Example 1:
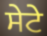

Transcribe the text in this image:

ਸੇਟੇ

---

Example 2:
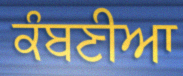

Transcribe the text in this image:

ਕੰਬਣੀਆ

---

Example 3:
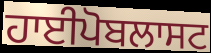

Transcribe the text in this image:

ਹਾਈਪੋਬਲਾਸਟ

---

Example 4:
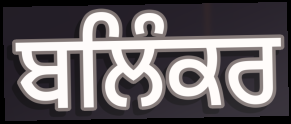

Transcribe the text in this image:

ਬਲਿੰਕਰ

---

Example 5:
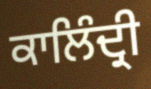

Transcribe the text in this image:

ਕਾਲਿੰਦ੍ਰੀ